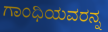
ಗಾಂಧಿಯವರನ್ನ